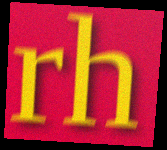
rh